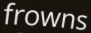
frowns